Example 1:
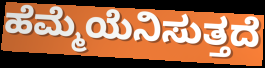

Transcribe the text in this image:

ಹೆಮ್ಮೆಯೆನಿಸುತ್ತದೆ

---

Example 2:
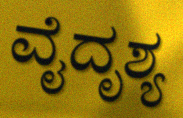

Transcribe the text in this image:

ವೈದೃಶ್ಯ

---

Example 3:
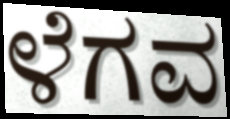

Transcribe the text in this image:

ಳೆಗವ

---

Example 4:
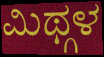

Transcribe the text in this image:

ಮಿಥ್ಗಳ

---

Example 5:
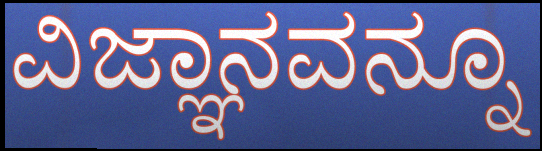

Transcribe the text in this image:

ವಿಜ್ಞಾನವನ್ನೂ